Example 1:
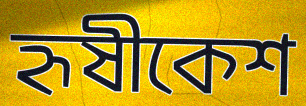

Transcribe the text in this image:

হৃষীকেশ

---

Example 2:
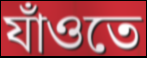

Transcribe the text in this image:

যাঁওতে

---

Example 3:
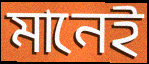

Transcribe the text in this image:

মানেই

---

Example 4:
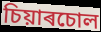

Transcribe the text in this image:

চিয়াৰচোল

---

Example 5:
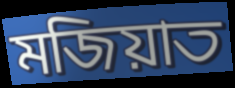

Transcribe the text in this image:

মজিয়াত